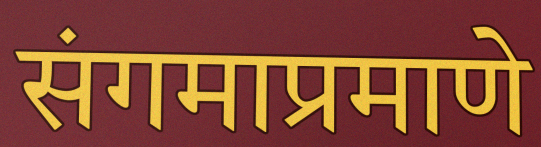
संगमाप्रमाणे